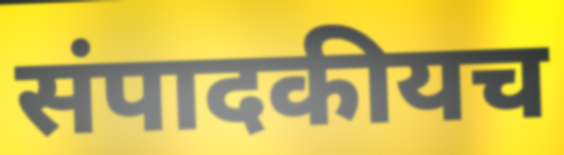
संपादकीयच